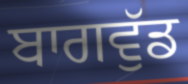
ਬਾਗਵੁੱਡ